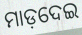
ମାଡ଼ଦେଇ